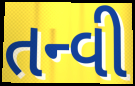
તન્વી